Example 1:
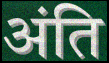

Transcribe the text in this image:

अंति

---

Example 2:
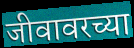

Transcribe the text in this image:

जीवावरच्या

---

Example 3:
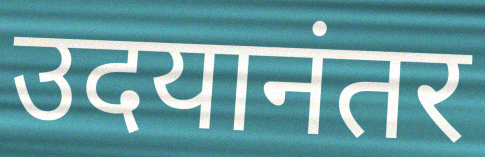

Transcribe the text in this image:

उदयानंतर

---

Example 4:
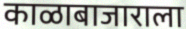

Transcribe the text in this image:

काळाबाजाराला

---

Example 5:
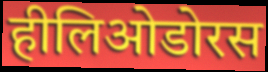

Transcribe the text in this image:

हीलिओडोरस